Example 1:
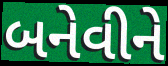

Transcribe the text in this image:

બનેવીને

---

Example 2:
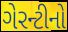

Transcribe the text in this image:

ગેરન્ટીનો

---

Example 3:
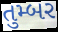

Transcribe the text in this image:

તુમ્બર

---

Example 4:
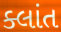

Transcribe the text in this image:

ક્લાંત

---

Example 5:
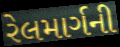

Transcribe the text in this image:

રેલમાર્ગની